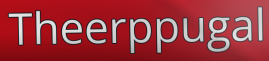
Theerppugal